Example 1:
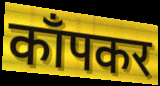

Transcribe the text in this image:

काँपकर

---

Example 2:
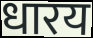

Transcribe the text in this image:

धारय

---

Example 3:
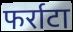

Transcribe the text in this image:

फर्राटा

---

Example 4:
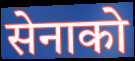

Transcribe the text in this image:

सेनाको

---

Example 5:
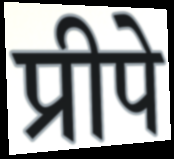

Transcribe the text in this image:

प्रीपे